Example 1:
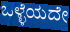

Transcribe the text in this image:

ಒಳ್ಳೆಯದೇ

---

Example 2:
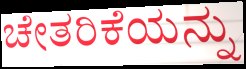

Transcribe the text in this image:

ಚೇತರಿಕೆಯನ್ನು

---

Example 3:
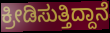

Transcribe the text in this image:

ಕ್ರೀಡಿಸುತ್ತಿದ್ದಾನೆ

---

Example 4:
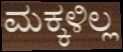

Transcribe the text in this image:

ಮಕ್ಕಳಿಲ್ಲ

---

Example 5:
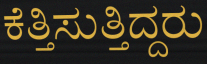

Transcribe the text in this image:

ಕೆತ್ತಿಸುತ್ತಿದ್ದರು